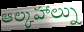
ఆల్కహాల్ను